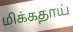
மிக்கதாய்